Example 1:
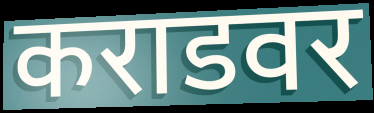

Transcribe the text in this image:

कराडवर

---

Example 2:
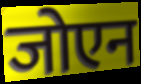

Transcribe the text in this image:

जोएन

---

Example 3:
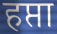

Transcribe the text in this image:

हप्ता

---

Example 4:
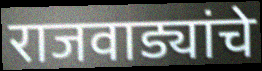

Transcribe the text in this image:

राजवाड्यांचे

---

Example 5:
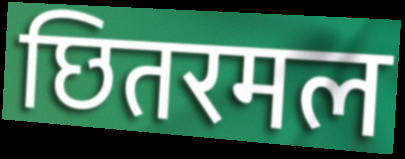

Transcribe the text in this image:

छितरमल